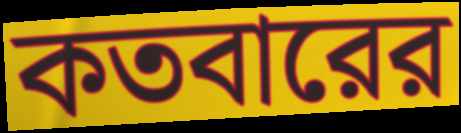
কতবারের